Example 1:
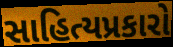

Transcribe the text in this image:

સાહિત્યપ્રકારો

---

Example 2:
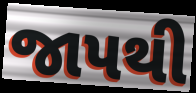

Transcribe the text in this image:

જાપથી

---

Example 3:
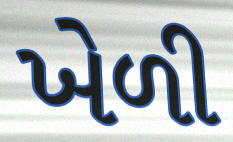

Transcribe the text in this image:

ખેળી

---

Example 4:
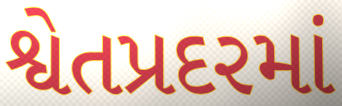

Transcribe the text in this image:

શ્વેતપ્રદરમાં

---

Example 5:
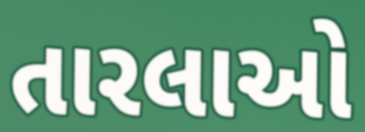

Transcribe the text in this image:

તારલાઓ